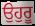
ਉਹੁਰੂ